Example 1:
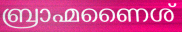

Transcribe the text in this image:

ബ്രാഹ്മണൈശ്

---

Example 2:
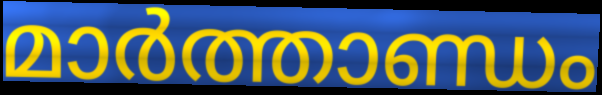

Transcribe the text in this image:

മാർത്താണ്ഡം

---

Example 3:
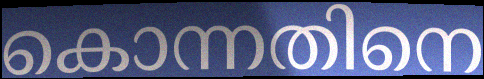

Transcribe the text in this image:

കൊന്നതിനെ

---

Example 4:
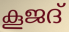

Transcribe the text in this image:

കൂജദ്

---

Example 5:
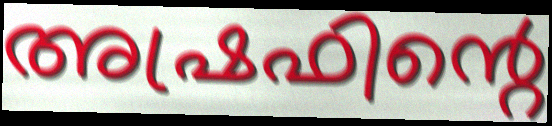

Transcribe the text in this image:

അഷ്രഫിന്റെ